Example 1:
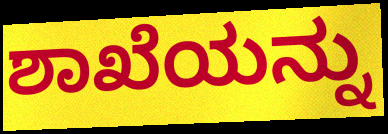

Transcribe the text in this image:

ಶಾಖೆಯನ್ನು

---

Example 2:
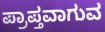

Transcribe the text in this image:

ಪ್ರಾಪ್ತವಾಗುವ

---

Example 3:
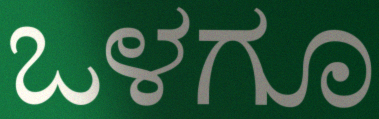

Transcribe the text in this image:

ಒಳಗೂ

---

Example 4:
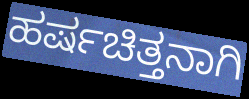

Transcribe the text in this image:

ಹರ್ಷಚಿತ್ತನಾಗಿ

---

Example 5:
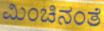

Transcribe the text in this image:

ಮಿಂಚಿನಂತೆ